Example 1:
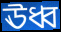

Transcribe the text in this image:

ঊধ্ব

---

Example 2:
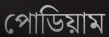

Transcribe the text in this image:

পোডিয়াম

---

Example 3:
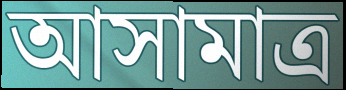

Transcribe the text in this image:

আসামাত্র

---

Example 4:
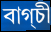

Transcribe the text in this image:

বাগ্চী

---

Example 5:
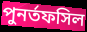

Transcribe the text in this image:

পুনর্তফসিল